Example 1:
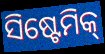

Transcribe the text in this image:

ସିଷ୍ଟେମିକ୍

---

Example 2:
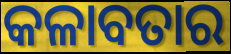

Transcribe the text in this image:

କଳାବତାର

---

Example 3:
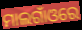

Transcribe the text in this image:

ମାଲଗାଁଓରେ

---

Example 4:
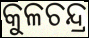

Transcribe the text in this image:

କୁଳଚନ୍ଦ୍ର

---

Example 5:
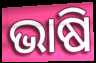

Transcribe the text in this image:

ଭାଷି